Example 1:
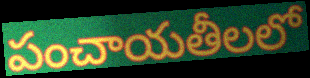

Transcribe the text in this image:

పంచాయతీలలో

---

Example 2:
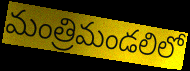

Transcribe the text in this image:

మంత్రిమండలిలో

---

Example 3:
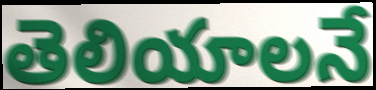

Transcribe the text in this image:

తెలియాలనే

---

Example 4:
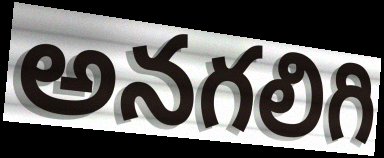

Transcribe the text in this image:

అనగలిగి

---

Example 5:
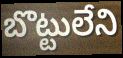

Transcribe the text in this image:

బొట్టులేని